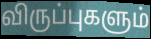
விருப்புகளும்